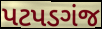
પટપડગંજ